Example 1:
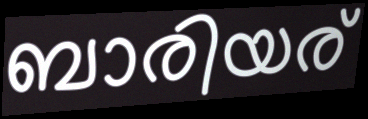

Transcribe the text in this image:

ബാരിയര്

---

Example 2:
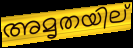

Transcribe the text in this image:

അമൃതയില്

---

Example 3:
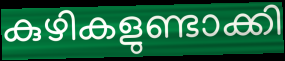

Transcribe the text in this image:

കുഴികളുണ്ടാക്കി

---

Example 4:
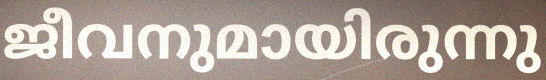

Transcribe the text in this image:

ജീവനുമായിരുന്നു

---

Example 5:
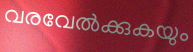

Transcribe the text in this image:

വരവേൽക്കുകയും